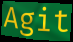
Agit